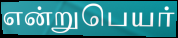
என்றுபெயர்